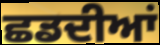
ਛਡਦੀਆਂ